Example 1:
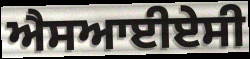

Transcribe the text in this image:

ਐਸਆਈਏਸੀ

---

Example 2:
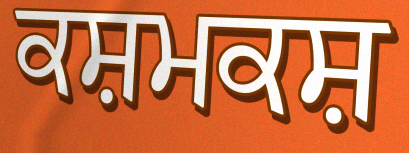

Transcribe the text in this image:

ਕਸ਼ਮਕਸ਼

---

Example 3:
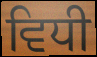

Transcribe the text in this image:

ਵਿਧੀ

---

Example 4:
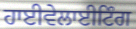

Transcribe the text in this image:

ਹਾਈਵੇਲਾਈਟਿੰਗ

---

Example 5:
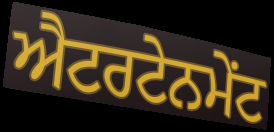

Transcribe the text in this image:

ਐਟਰਟੇਨਮੇਂਟ